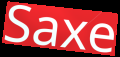
Saxe